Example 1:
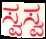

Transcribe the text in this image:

ಸ್ವಸ್ವ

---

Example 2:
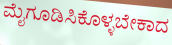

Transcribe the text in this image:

ಮೈಗೂಡಿಸಿಕೊಳ್ಳಬೇಕಾದ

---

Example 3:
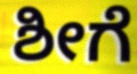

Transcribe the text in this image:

ಶೀಗೆ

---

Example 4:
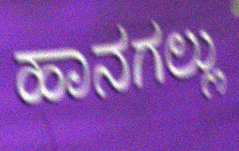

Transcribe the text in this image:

ಹಾನಗಲ್ಲು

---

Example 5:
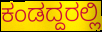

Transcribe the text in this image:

ಕಂಡದ್ದರಲ್ಲಿ